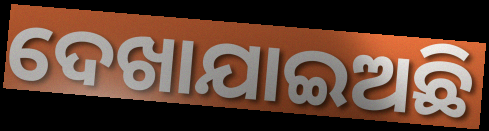
ଦେଖାଯାଇଅଛି